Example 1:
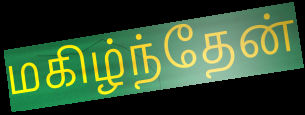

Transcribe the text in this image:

மகிழ்ந்தேன்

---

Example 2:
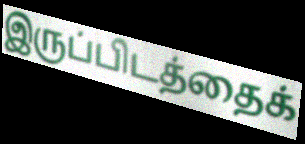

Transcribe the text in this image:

இருப்பிடத்தைக்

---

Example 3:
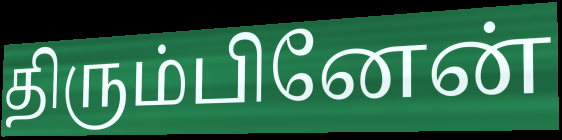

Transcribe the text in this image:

திரும்பினேன்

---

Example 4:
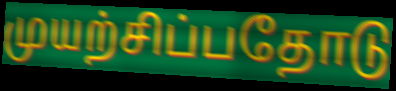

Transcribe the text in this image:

முயற்சிப்பதோடு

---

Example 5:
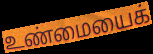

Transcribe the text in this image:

உண்மையைக்